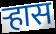
ऱ्हास